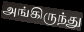
அங்கிருந்து